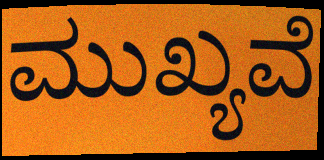
ಮುಖ್ಯವೆ